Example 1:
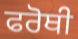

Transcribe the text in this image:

ਫਰੋਥੀ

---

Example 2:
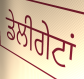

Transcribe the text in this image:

ਡੇਲੀਗੇਟਾਂ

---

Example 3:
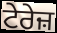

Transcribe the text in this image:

ਟੇਰੇਜ਼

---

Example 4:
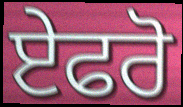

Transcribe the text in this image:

ਏਫਰੋ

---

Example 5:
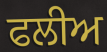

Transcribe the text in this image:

ਫਲੀਅ